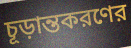
চূড়ান্তকরণের